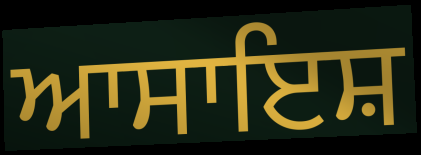
ਆਸਾਇਸ਼